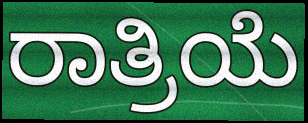
ರಾತ್ರಿಯೆ